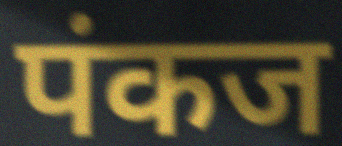
पंकज